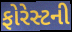
ફોરેસ્ટની